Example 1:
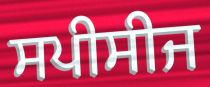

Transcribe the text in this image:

ਸਪੀਸੀਜ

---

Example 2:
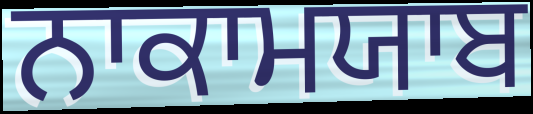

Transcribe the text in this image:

ਨਾਕਾਮਯਾਬ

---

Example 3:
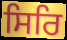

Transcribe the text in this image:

ਸਿਰਿ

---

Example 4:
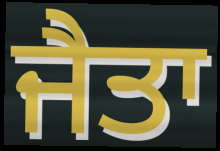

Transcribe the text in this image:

ਜੈਤਾ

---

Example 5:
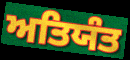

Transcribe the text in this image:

ਅਤਿਯੰਤ